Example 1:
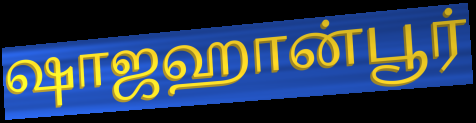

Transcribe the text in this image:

ஷாஜஹான்பூர்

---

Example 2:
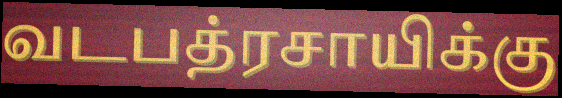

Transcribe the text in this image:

வடபத்ரசாயிக்கு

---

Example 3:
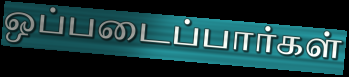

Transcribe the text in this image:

ஒப்படைப்பார்கள்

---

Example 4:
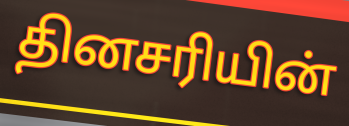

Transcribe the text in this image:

தினசரியின்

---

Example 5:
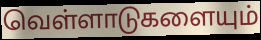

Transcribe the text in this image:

வெள்ளாடுகளையும்